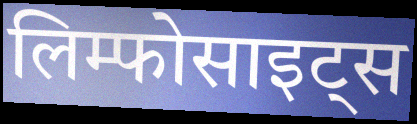
लिम्फोसाइट्स